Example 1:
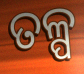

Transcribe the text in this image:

ତଳ୍ପ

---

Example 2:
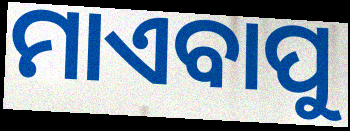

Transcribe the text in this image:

ମାଏବାପୁ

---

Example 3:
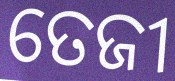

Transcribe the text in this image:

ତେଜୀ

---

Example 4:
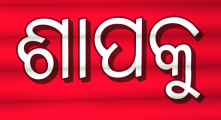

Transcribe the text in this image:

ଶାପକୁ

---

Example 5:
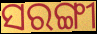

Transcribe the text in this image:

ସରଙ୍ଗୀ